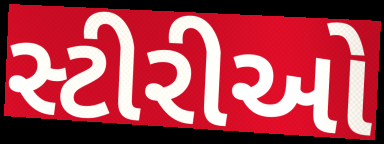
સ્ટીરીઓ